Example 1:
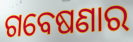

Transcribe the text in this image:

ଗବେଷଣାର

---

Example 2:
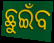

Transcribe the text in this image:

ଛୁଇଁବ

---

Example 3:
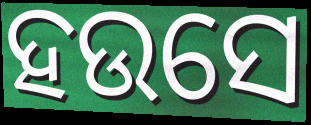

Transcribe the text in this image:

ହଉସେ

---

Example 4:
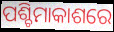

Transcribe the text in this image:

ପଶ୍ଚିମାକାଶରେ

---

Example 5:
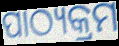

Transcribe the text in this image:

ପାଠ୍ୟକ୍ରମ